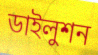
ডাইলুশন